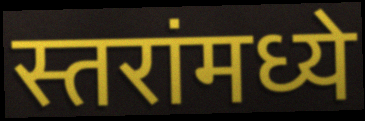
स्तरांमध्ये